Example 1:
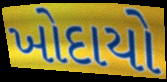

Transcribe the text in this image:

ખોદાયો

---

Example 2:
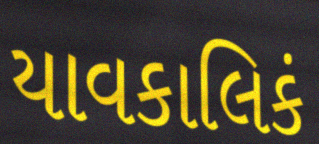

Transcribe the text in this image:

યાવકાલિકં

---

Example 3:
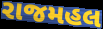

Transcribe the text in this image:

રાજમહલ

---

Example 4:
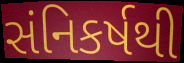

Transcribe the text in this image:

સંનિકર્ષથી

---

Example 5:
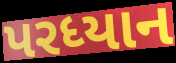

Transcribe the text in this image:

પરધ્યાન